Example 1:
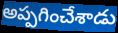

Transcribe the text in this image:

అప్పగించేశాడు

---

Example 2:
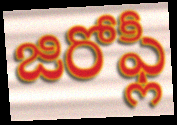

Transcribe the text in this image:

జిరోఫ్లీ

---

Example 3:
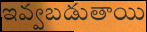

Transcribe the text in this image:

ఇవ్వబడుతాయి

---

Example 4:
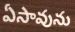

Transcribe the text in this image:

ఏసావును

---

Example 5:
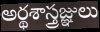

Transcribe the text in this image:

అర్థశాస్త్రజ్ఞులు